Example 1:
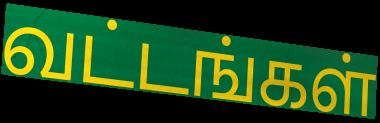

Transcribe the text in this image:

வட்டங்கள்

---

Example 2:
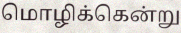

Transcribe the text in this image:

மொழிக்கென்று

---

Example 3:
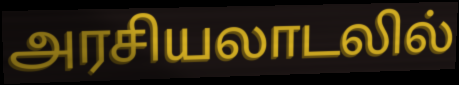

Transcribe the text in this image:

அரசியலாடலில்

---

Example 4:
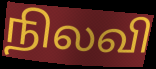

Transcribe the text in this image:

நிலவி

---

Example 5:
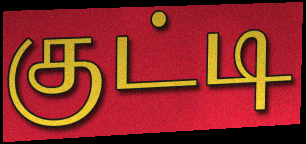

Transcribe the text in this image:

குட்டி